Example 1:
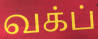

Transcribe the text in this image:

வக்ப்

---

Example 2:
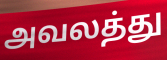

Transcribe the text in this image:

அவலத்து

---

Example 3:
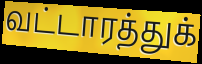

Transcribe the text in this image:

வட்டாரத்துக்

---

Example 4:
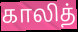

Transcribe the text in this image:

காலித்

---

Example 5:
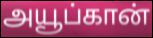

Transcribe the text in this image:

அயூப்கான்